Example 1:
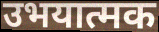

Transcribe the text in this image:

उभयात्मक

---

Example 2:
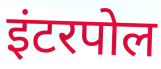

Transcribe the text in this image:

इंटरपोल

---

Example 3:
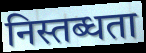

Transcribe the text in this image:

निस्तब्धता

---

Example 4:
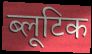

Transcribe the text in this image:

ब्लूटिक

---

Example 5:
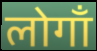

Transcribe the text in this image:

लोगाँ